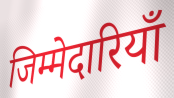
जिम्मेदारियाँ